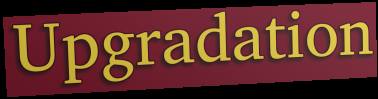
Upgradation